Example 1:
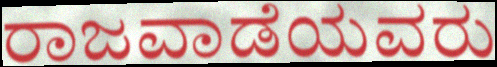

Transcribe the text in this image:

ರಾಜವಾಡೆಯವರು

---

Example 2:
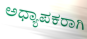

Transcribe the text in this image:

ಅಧ್ಯಾಪಕರಾಗಿ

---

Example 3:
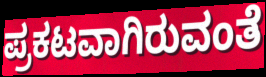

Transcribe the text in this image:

ಪ್ರಕಟವಾಗಿರುವಂತೆ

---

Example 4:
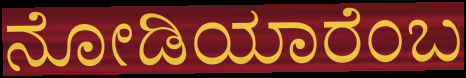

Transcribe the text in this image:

ನೋಡಿಯಾರೆಂಬ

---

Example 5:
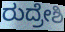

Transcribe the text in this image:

ರುದ್ರೇಶಿ